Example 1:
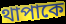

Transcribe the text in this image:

থাপাকে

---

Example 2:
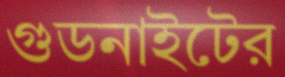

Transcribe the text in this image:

গুডনাইটের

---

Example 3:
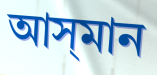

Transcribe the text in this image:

আস্‌মান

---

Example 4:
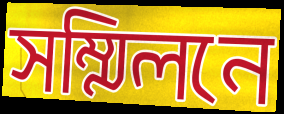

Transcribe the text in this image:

সম্মিলনে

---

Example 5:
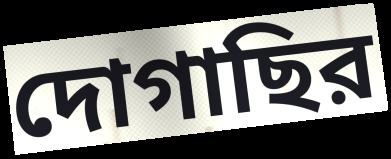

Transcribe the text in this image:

দোগাছির